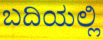
ಬದಿಯಲ್ಲಿ